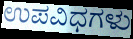
ಉಪವಿಧಗಳು